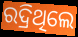
ରଦ୍ରିଥିଲେ